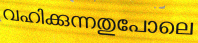
വഹിക്കുന്നതുപോലെ